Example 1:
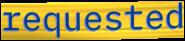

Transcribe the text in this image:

requested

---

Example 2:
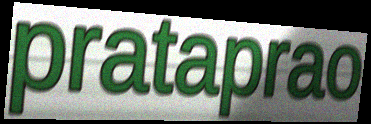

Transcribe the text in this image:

prataprao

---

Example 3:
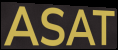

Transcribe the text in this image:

ASAT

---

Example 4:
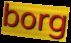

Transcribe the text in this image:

borg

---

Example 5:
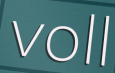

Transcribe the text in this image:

voll